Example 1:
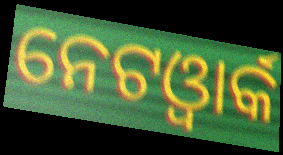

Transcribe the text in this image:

ନେଟଓ୍ବାର୍କ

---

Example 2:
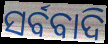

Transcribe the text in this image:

ସର୍ବବାଦି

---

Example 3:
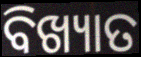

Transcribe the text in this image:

ବିଖ୍ୟାତ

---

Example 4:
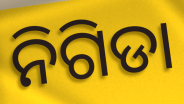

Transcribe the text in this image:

ନିଗିଡା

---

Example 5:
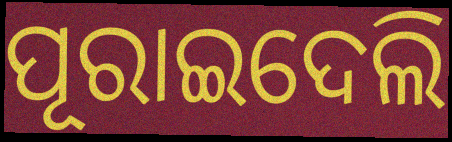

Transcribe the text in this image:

ପୂରାଇଦେଲି